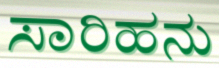
ಸಾರಿಹನು